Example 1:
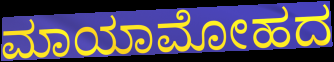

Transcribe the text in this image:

ಮಾಯಾಮೋಹದ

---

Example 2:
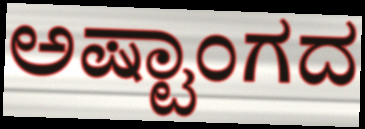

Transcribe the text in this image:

ಅಷ್ಟಾಂಗದ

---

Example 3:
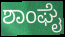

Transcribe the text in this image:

ಶಾಂಘೈ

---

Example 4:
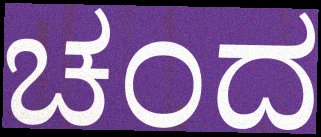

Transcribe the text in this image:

ಚಂದ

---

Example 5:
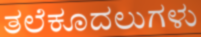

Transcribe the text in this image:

ತಲೆಕೂದಲುಗಳು